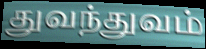
துவந்துவம்